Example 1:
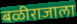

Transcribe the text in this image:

बळीराजाला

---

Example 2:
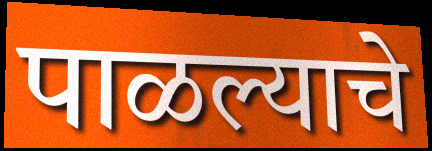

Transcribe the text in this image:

पाळल्याचे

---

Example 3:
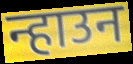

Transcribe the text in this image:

न्हाउन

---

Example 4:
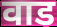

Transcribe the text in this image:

वाड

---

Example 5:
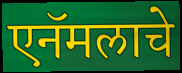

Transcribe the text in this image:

एनॅमलाचे